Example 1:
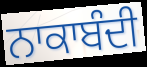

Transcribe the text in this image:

ਨਾਕਾਬੰਦੀ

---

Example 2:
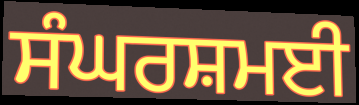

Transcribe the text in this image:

ਸੰਘਰਸ਼ਮਈ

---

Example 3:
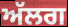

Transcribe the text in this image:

ਅੱਲਗ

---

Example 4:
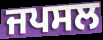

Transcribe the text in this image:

ਜਪਸਲ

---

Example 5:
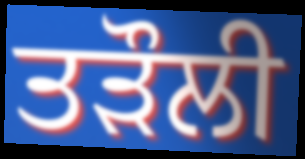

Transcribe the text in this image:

ਤੜੌਲੀ